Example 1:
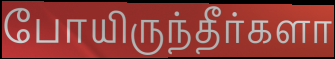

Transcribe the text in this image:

போயிருந்தீர்களா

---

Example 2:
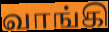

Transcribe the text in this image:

வாங்கி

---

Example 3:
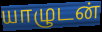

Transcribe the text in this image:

யாழுடன்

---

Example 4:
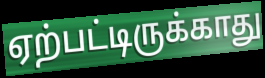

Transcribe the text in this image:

ஏற்பட்டிருக்காது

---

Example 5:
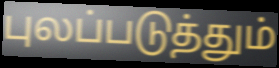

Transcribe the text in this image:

புலப்படுத்தும்